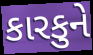
કારકુને